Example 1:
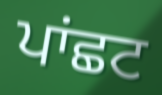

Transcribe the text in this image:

ਪਾਂਛਟ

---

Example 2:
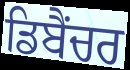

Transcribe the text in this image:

ਡਿਬੈਂਚਰ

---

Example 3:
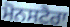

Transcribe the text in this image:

ਮੋਨਸਟੈਰਾ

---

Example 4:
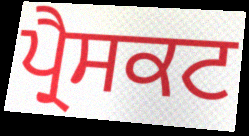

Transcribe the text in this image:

ਪ੍ਰੈਸਕਟ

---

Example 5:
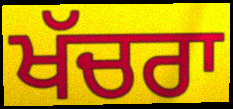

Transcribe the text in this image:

ਖੱਚਰਾ